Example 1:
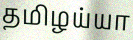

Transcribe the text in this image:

தமிழய்யா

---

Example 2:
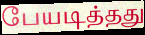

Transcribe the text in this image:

பேயடித்தது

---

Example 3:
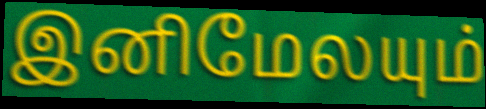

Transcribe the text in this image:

இனிமேலயும்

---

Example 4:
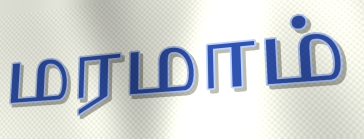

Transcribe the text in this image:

மரமாம்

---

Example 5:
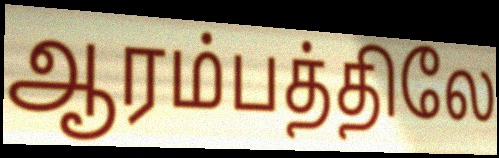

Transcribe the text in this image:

ஆரம்பத்திலே